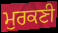
ਮੁਰਕਣੀ